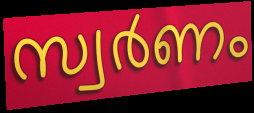
സ്വർണം